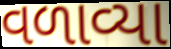
વળાવ્યા